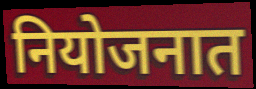
नियोजनात